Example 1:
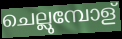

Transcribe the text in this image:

ചെല്ലുമ്പോള്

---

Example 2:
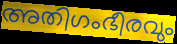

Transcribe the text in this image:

അതിഗംഭീരവും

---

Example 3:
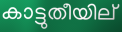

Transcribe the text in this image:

കാട്ടുതീയില്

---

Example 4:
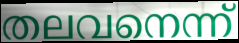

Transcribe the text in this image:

തലവനെന്ന്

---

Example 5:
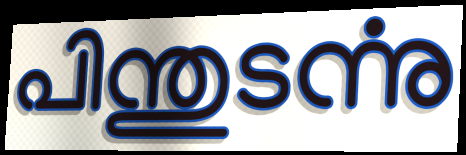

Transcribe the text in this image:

പിന്തുടൎന്നു